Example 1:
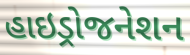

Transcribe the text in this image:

હાઇડ્રોજનેશન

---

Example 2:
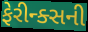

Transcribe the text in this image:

ફેરીન્ક્સની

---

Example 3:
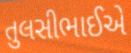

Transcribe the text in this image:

તુલસીભાઈએ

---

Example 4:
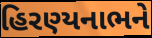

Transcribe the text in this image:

હિરણ્યનાભને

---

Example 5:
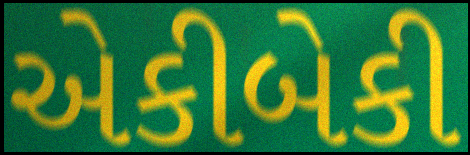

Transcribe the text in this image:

એકીબેકી